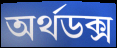
অর্থডক্স